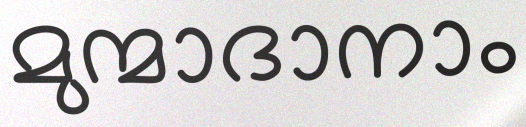
മുന്മാദാനാം